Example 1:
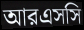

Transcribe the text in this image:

আরএসসি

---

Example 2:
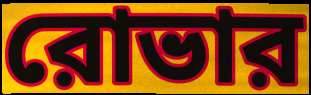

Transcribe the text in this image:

রোভার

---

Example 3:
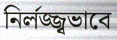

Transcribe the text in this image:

নির্লজ্জ্বভাবে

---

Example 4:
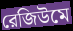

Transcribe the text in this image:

রেজিউমে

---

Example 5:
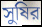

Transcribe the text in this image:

সুষির